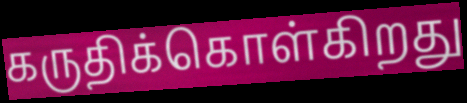
கருதிக்கொள்கிறது